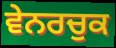
ਵੇਨਰਚੁਕ